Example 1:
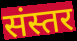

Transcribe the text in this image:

संस्तर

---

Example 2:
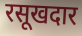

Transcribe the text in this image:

रसूखदार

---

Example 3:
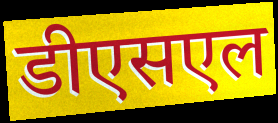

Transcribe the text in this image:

डीएसएल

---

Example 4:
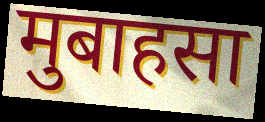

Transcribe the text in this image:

मुबाहसा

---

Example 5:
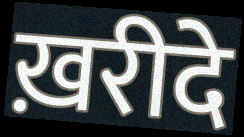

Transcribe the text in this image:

ख़रीदे